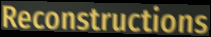
Reconstructions